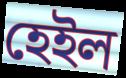
হেইল